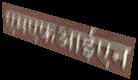
एमएफआईएन